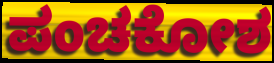
ಪಂಚಕೋಶ